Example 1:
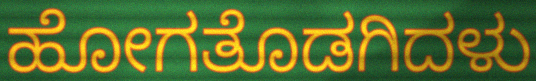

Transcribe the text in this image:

ಹೋಗತೊಡಗಿದಳು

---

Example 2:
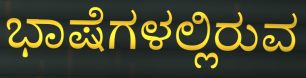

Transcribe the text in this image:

ಭಾಷೆಗಳಲ್ಲಿರುವ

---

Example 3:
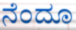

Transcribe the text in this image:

ನೆಂದೂ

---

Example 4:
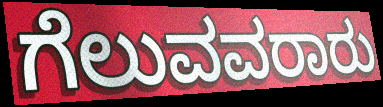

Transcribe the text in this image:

ಗೆಲುವವರಾರು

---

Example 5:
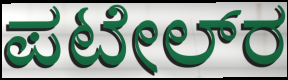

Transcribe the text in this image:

ಪಟೇಲ್‌ರ